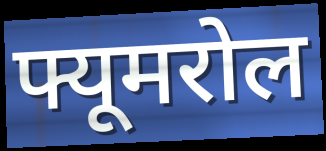
फ्यूमरोल